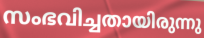
സംഭവിച്ചതായിരുന്നു